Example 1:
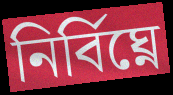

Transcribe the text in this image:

নির্বিঘ্নে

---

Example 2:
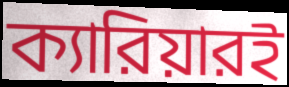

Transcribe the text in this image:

ক্যারিয়ারই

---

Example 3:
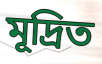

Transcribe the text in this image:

মূদ্রিত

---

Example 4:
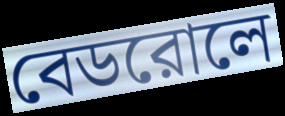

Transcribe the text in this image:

বেডরোলে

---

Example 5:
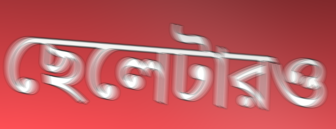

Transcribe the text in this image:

ছেলেটারও